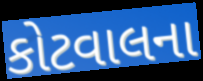
કોટવાલના